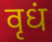
वृधं